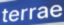
terrae